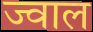
ज्वाल